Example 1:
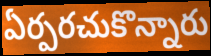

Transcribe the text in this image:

ఏర్పరచుకొన్నారు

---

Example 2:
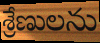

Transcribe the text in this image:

శ్రేణులను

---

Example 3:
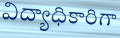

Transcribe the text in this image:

విద్యాధికారిగా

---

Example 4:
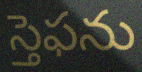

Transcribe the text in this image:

స్తెఫను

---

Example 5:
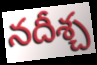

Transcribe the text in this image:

నదీశ్చ